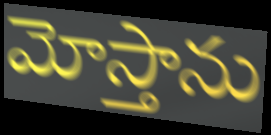
మోస్తాను